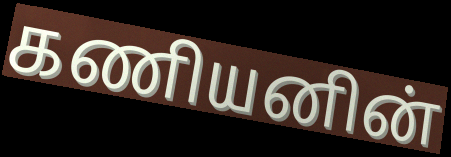
கணியனின்